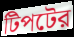
টিপটের